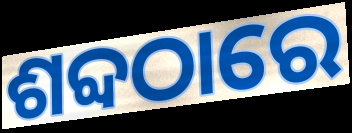
ଶବ୍ଦଠାରେ